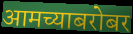
आमच्याबरोबर